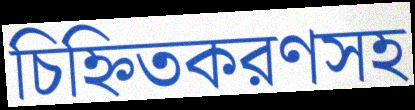
চিহ্নিতকরণসহ